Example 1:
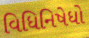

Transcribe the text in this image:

વિધિનિષેધો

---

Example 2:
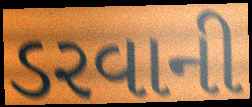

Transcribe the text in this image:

ડરવાની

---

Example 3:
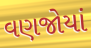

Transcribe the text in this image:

વણજોયાં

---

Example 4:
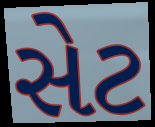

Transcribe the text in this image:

સેટ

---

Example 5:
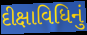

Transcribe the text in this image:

દીક્ષાવિધિનું